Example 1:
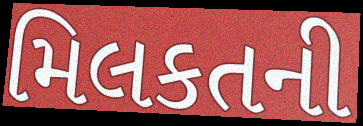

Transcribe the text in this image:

મિલકતની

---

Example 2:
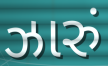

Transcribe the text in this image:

ઝારું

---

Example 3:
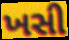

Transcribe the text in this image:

ખસી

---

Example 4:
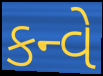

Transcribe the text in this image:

કન્વે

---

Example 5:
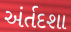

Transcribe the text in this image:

અંર્તદશા